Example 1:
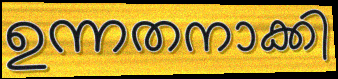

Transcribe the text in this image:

ഉന്നതനാക്കി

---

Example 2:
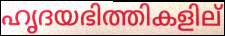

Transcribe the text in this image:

ഹൃദയഭിത്തികളില്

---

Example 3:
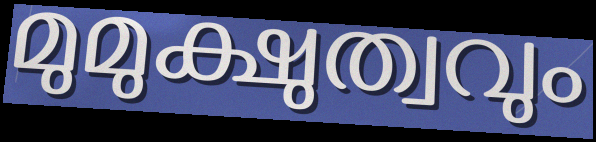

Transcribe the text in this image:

മുമുക്ഷുത്വവും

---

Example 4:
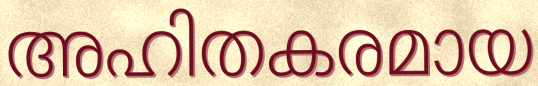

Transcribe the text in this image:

അഹിതകരമായ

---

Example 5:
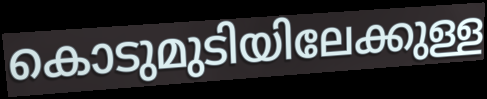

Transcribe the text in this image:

കൊടുമുടിയിലേക്കുള്ള